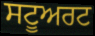
ਸਟੂਅਰਟ